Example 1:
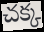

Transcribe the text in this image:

చక్క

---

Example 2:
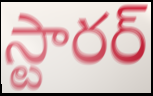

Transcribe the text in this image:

స్టారర్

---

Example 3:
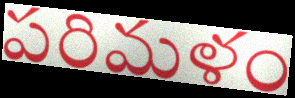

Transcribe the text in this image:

పరిమళం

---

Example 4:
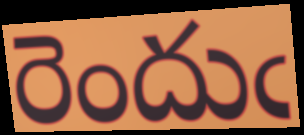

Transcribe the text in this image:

రెందుఁ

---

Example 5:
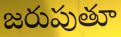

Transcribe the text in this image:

జరుపుతూ